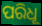
ପରିଧୂ